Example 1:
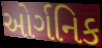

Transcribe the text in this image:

ઓર્ગનિક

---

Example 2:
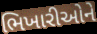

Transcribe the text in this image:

ભિખારીઓને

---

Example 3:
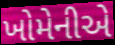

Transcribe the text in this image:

ખોમેનીએ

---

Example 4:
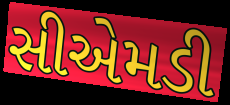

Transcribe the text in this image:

સીએમડી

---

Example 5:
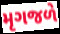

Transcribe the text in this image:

મૃગજળે